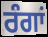
ਰੰਗਾਂ